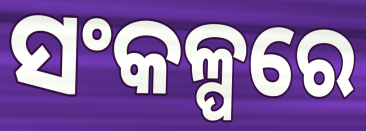
ସଂକଳ୍ପରେ